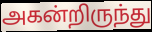
அகன்றிருந்து